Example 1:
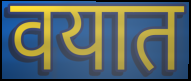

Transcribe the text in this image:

वयात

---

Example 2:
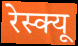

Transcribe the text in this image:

रेस्क्यू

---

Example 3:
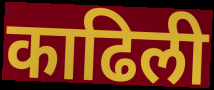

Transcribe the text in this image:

काढिली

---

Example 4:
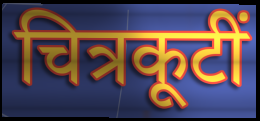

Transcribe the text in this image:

चित्रकूटीं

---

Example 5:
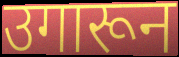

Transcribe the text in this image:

उगारून